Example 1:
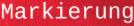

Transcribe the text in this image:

Markierung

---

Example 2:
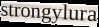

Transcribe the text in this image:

strongylura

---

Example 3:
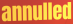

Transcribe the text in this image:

annulled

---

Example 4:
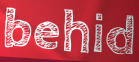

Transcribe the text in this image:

behid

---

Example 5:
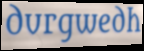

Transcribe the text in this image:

durgwedh